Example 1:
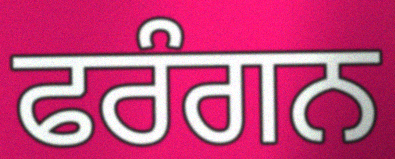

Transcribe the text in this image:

ਫਰੰਗਨ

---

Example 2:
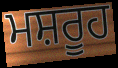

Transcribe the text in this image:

ਮਸ਼ਰੂਹ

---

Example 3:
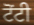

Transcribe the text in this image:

ਟੋਂਟੀ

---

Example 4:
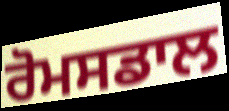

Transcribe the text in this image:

ਰੋਮਸਡਾਲ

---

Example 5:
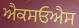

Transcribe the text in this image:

ਐਕਸਓਐਸ